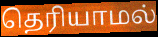
தெரியாமல்